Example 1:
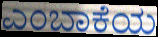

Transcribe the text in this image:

ಎಂಬಾಕೆಯ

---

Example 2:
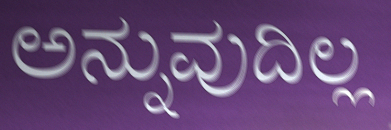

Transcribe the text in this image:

ಅನ್ನುವುದಿಲ್ಲ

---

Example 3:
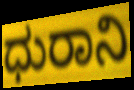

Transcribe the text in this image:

ಧುರಾನಿ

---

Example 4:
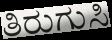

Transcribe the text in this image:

ತಿರುಗುಸಿ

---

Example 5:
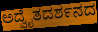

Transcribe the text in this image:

ಅದ್ವೈತದರ್ಶನದ